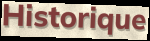
Historique